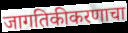
जागतिकीकरणाचा